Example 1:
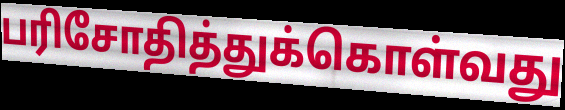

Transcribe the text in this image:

பரிசோதித்துக்கொள்வது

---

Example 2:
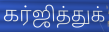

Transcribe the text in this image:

கர்ஜித்துக்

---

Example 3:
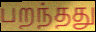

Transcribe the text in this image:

பறந்தது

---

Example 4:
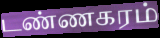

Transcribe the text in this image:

டண்ணகரம்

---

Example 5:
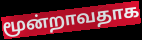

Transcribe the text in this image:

மூன்றாவதாக